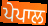
ਪੇਪਾਲ